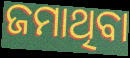
ଜମାଥିବା